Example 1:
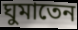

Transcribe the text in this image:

ঘুমাতেন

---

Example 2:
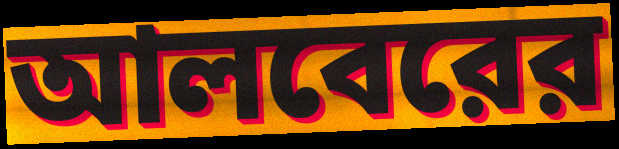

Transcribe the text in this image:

আলবেরের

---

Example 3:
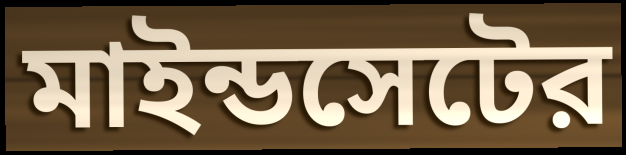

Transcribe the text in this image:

মাইন্ডসেটের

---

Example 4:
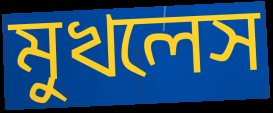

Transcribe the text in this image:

মুখলেস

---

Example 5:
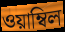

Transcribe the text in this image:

ওয়াম্বিল